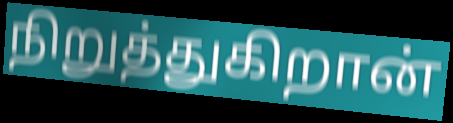
நிறுத்துகிறான்